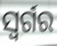
ସ୍ୱର୍ଗର